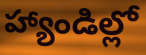
హ్యాండిల్లో